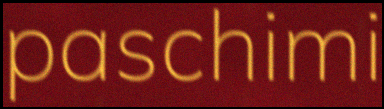
paschimi